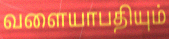
வளையாபதியும்